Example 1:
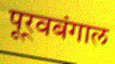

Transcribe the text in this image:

पूर्वबंगाल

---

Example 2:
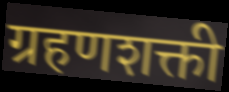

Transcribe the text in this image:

ग्रहणशक्ती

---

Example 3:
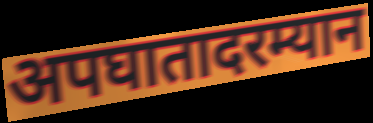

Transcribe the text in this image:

अपघातादरम्यान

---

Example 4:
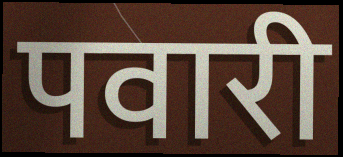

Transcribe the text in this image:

पवारी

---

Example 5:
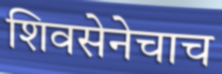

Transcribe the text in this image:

शिवसेनेचाच